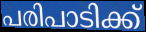
പരിപാടിക്ക്